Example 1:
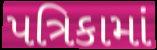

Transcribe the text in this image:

પત્રિકામાં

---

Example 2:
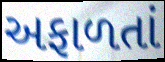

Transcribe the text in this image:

અફાળતાં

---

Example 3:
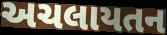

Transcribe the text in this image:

અચલાયતન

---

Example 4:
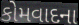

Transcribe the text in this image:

કોમવાદના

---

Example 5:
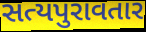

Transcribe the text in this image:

સત્યપુરાવતાર